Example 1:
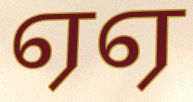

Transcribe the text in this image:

ஏஏ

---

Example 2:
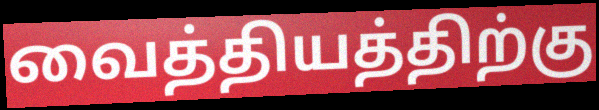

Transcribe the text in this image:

வைத்தியத்திற்கு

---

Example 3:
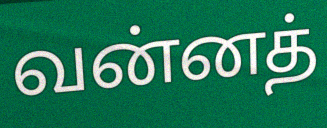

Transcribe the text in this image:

வன்னத்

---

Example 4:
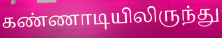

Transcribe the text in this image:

கண்ணாடியிலிருந்து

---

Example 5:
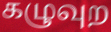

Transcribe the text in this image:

கழுவுற